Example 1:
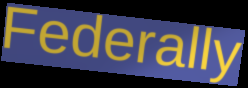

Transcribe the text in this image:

Federally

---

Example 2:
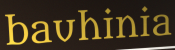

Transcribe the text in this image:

bauhinia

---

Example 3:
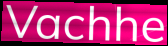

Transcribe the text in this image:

Vachhe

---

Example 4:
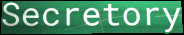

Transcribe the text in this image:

Secretory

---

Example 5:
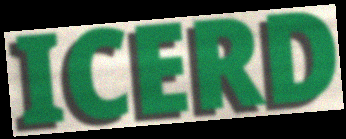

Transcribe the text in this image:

ICERD